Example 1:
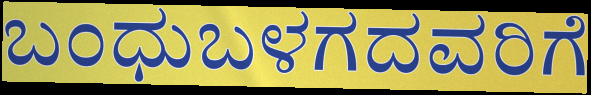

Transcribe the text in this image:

ಬಂಧುಬಳಗದವರಿಗೆ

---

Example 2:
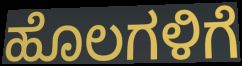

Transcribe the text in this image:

ಹೊಲಗಳಿಗೆ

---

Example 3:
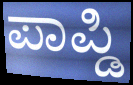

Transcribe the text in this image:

ಪಾಪ್ಡಿ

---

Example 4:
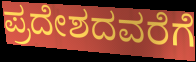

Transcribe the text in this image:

ಪ್ರದೇಶದವರೆಗೆ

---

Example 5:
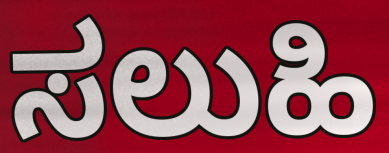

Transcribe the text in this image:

ಸಲುಹಿ